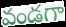
వండగా